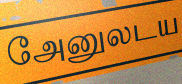
அேனுலடய